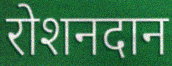
रोशनदान